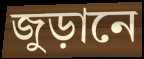
জুড়ানে